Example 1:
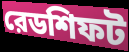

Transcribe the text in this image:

রেডশিফট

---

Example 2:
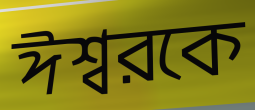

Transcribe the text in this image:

ঈশ্বরকে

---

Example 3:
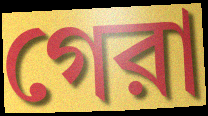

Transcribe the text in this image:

গেরা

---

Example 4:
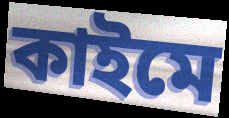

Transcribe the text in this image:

কাইমে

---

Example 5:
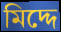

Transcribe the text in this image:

মিদ্দে